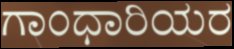
ಗಾಂಧಾರಿಯರ